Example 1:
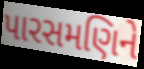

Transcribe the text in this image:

પારસમણિને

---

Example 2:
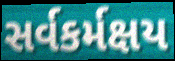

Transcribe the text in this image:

સર્વકર્મક્ષય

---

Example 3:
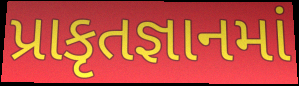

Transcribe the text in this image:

પ્રાકૃતજ્ઞાનમાં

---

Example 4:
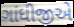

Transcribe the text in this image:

ગાંધીજીએ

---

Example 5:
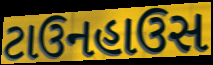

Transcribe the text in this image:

ટાઉનહાઉસ